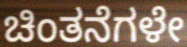
ಚಿಂತನೆಗಳೇ